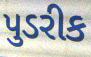
પુડરીક